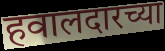
हवालदारच्या